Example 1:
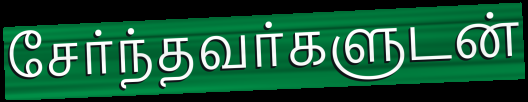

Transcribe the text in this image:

சேர்ந்தவர்களுடன்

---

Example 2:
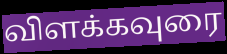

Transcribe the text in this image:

விளக்கவுரை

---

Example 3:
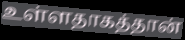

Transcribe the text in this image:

உள்ளதாகத்தான்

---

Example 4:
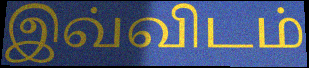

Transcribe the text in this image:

இவ்விடம்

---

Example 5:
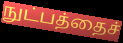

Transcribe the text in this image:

நுட்பத்தைச்